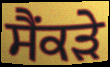
ਸੈਂਕੜੇ